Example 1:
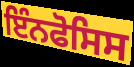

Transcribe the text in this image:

ਇੰਨਫੋਸਿਸ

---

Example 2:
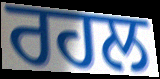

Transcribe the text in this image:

ਰਹਲ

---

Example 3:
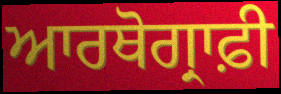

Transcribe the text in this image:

ਆਰਥੋਗ੍ਰਾਫ਼ੀ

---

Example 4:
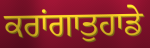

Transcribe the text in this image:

ਕਰਾਂਗਾਤੁਹਾਡੇ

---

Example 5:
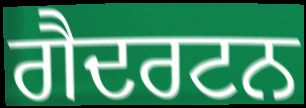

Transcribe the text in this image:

ਗੈਦਰਟਨ